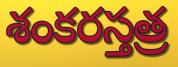
శంకరస్తత్ర